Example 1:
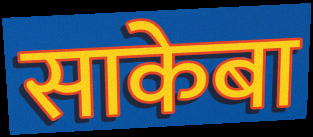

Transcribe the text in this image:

साकेबा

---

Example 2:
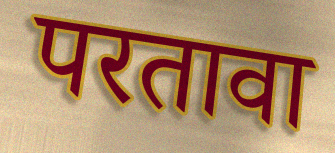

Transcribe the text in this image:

परतावा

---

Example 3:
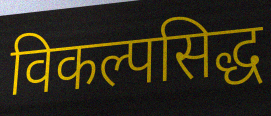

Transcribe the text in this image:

विकल्पसिद्ध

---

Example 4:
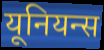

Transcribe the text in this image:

यूनियन्स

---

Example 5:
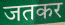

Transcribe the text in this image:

जतकर